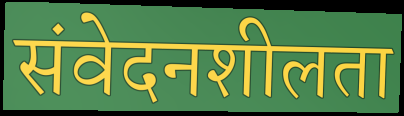
संवेदनशीलता